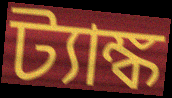
ট্যাঙ্ক